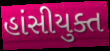
હાંસીયુક્ત